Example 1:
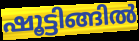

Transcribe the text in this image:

ഷൂട്ടിങ്ങിൽ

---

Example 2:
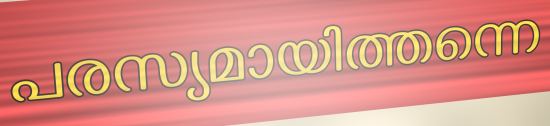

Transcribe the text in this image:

പരസ്യമായിത്തന്നെ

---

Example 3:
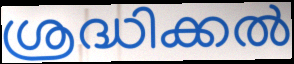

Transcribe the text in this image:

ശ്രദ്ധിക്കൽ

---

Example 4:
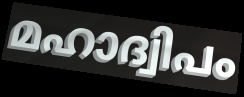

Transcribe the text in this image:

മഹാദ്വിപം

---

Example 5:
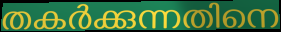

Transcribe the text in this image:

തകർക്കുന്നതിനെ